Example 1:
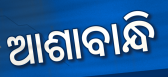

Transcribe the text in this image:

ଆଶାବାନ୍ଧି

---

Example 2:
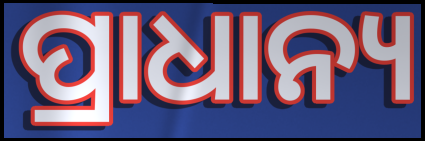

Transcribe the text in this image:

ପ୍ରାଧାନ୍ୟ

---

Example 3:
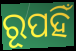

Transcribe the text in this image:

ରୂପହିଁ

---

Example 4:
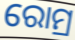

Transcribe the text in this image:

ରୋମ୍ର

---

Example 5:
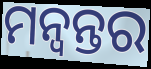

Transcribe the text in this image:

ମନ୍ୱନ୍ତର